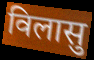
विलासु